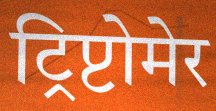
ट्रिप्टोमेर